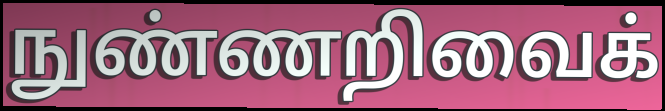
நுண்ணறிவைக்